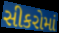
સીકરોમાં